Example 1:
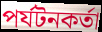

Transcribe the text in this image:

পর্যটনকর্তা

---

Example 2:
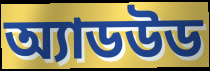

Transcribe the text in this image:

অ্যাডউড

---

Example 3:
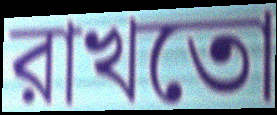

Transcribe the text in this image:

রাখতো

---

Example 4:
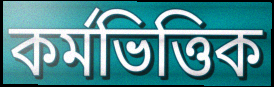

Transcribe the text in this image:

কর্মভিত্তিক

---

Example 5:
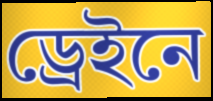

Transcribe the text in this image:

ড্রেইনে